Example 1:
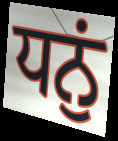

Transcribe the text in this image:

ਧਨੁਂ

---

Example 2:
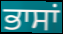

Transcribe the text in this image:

ਭਾਸਾਂ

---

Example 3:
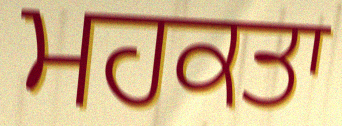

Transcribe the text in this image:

ਮਹਕਤਾ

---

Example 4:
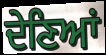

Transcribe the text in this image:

ਦੇਣਿਆਂ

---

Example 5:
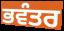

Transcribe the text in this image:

ਭਵੰਤਰ